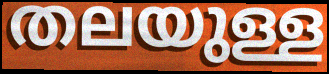
തലയുള്ള